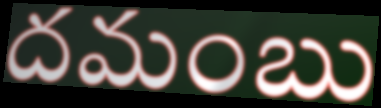
దమంబు